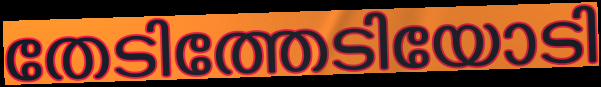
തേടിത്തേടിയോടി